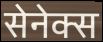
सेनेक्स